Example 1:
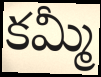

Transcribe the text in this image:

కమ్మీ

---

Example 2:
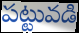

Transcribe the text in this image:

పట్టువడి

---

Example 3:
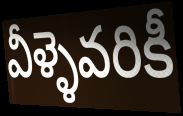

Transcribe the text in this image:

వీళ్ళెవరికీ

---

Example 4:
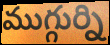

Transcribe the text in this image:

ముగ్గుర్ని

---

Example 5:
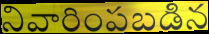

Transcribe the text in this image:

నివారింపబడిన